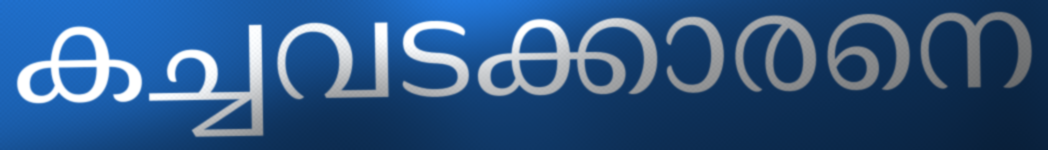
കച്ചവടക്കാരനെ